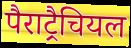
पैराट्रैचियल